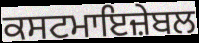
ਕਸਟਮਾਇਜ਼ੇਬਲ